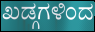
ಖಡ್ಗಗಳಿಂದ